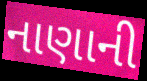
નાણાની